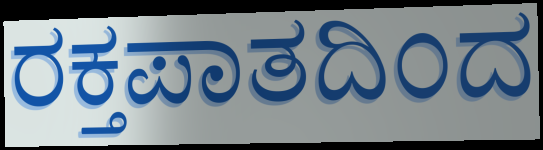
ರಕ್ತಪಾತದಿಂದ